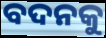
ବଦନକୁ